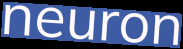
neuron